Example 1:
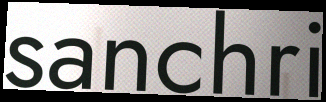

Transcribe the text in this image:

sanchri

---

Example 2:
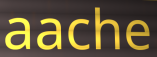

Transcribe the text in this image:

aache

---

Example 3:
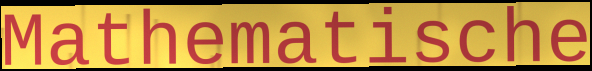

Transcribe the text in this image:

Mathematische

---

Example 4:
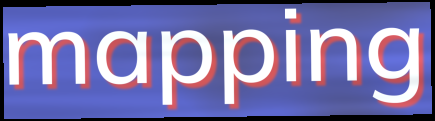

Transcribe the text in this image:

mapping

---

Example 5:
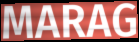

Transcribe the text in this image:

MARAG